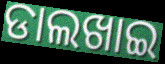
ଡାଲଖାଇ